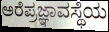
ಅರೆಪ್ರಜ್ಞಾವಸ್ಥೆಯ